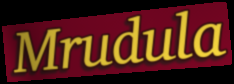
Mrudula